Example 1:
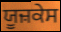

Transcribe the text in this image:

ਯੂਜ਼ਕੇਸ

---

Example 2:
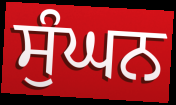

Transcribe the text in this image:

ਸੁੰਘਨ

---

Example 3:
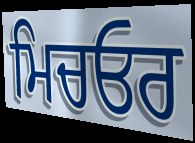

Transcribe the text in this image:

ਮਿਚਓਰ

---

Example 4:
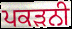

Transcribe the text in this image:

ਪਕੜਨੀ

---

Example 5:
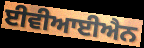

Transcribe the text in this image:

ਈਵੀਆਈਐਨ